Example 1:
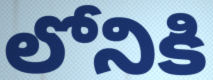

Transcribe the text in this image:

లోనికి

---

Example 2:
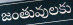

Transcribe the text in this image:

జంతువులకు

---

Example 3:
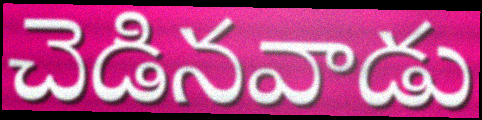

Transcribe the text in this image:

చెడినవాడు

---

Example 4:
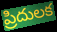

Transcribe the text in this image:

ప్రిదులక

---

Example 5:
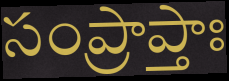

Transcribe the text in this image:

సంప్రాప్తాః